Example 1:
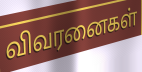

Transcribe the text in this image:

விவரனைகள்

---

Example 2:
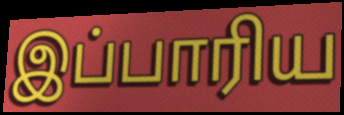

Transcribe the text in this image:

இப்பாரிய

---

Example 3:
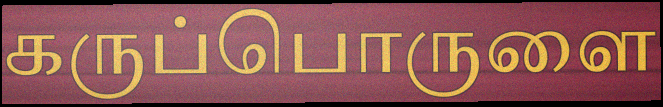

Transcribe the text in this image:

கருப்பொருளை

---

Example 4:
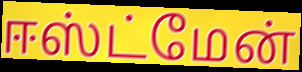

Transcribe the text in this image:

ஈஸ்ட்மேன்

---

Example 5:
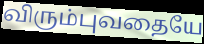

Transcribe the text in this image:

விரும்புவதையே